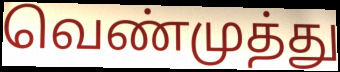
வெண்முத்து